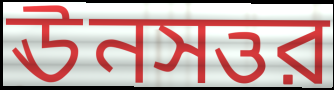
ঊনসত্তর